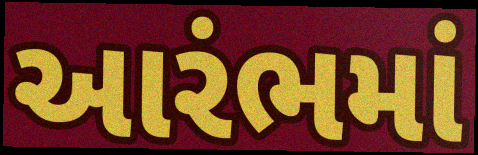
આરંભમાં